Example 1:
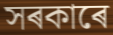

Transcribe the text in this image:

সৰকাৰে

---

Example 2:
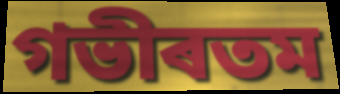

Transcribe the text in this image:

গভীৰতম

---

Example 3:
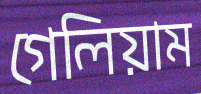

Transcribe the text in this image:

গেলিয়াম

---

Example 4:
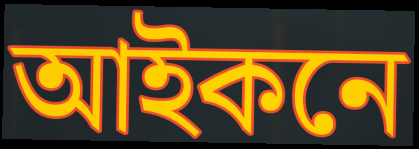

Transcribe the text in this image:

আইকনে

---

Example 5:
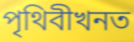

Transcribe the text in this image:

পৃথিবীখনত